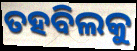
ତହବିଲକୁ